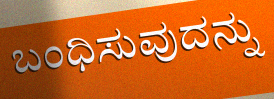
ಬಂಧಿಸುವುದನ್ನು